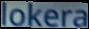
lokera